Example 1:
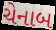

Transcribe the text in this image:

ચેનાબ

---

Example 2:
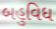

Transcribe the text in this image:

બહુવિધ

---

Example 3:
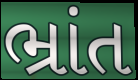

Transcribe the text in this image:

ભ્રાંત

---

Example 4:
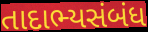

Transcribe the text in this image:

તાદાભ્યસંબંધ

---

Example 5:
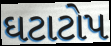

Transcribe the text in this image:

ઘટાટોપ